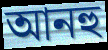
আনহু